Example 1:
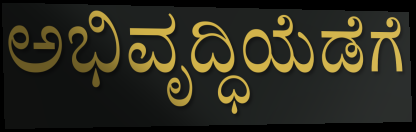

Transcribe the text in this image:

ಅಭಿವೃದ್ಧಿಯೆಡೆಗೆ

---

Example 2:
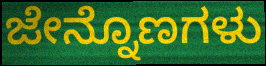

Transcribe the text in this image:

ಜೇನ್ನೊಣಗಳು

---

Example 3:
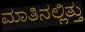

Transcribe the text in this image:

ಮಾತಿನಲ್ಲಿತ್ತು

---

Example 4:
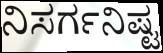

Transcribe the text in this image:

ನಿಸರ್ಗನಿಷ್ಟ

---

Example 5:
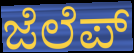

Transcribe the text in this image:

ಜೆಲೆಪ್